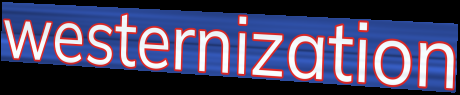
westernization